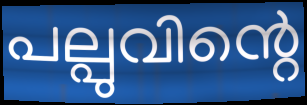
പല്പുവിന്റെ